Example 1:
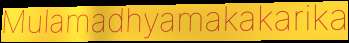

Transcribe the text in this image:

Mulamadhyamakakarika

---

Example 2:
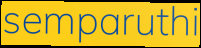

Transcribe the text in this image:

semparuthi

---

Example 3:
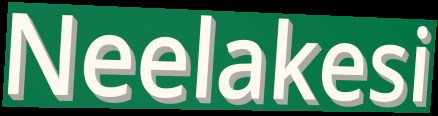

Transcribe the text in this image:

Neelakesi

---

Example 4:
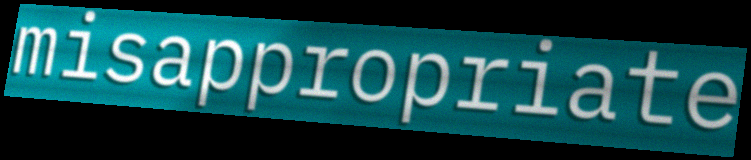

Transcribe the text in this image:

misappropriate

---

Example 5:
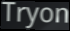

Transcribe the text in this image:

Tryon